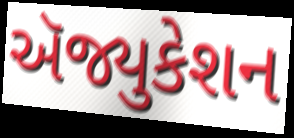
ઍજ્યુકેશન